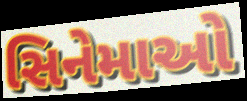
સિનેમાઓ